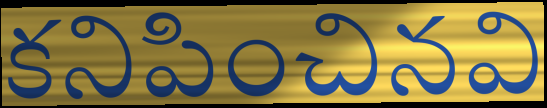
కనిపించినవి